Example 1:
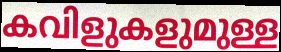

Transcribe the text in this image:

കവിളുകളുമുള്ള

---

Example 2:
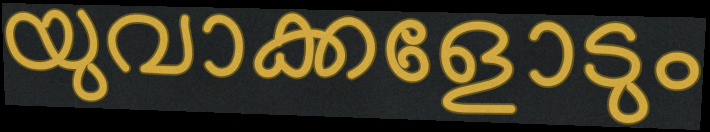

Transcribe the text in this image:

യുവാക്കളോടും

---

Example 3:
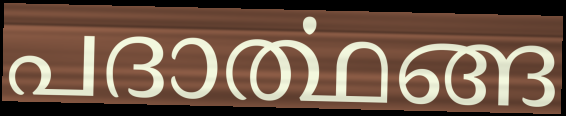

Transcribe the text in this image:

പദാൎത്ഥങ്ങ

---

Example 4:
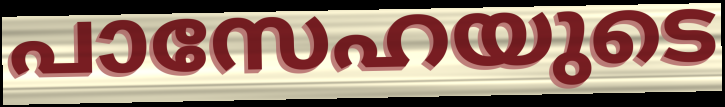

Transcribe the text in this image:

പാസേഹയുടെ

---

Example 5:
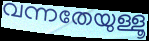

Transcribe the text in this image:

വന്നതേയുള്ളൂ